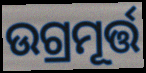
ଉଗ୍ରମୂର୍ତ୍ତ